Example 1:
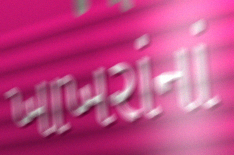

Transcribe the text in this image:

ખાખરાંનાં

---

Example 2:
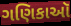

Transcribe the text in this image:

ગણિકાઑ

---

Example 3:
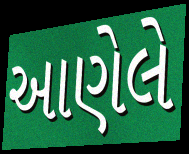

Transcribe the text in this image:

આણેલે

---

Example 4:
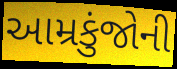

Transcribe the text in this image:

આમ્રકુંજોની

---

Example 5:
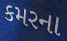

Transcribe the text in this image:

કમરના